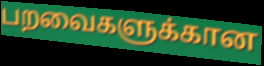
பறவைகளுக்கான